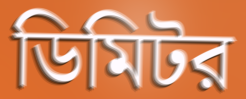
ডিমিটর